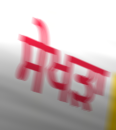
ਸੇਖੜਾ